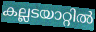
കല്ലടയാറ്റിൽ